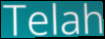
Telah